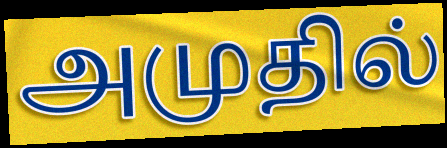
அமுதில்